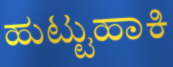
ಹುಟ್ಟುಹಾಕಿ